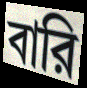
বারি